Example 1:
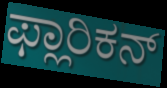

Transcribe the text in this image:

ಫ್ಲಾರಿಕನ್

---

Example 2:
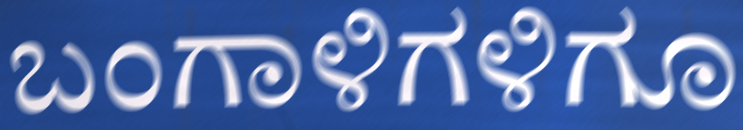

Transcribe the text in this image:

ಬಂಗಾಳಿಗಳಿಗೂ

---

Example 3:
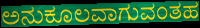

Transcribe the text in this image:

ಅನುಕೂಲವಾಗುವಂತಹ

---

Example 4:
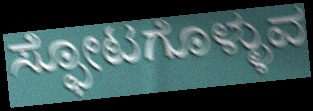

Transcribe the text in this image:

ಸ್ಫೋಟಗೊಳ್ಳುವ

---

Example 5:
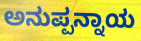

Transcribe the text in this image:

ಅನುಪ್ಪನ್ನಾಯ